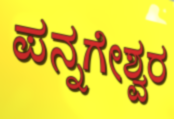
ಪನ್ನಗೇಶ್ವರ